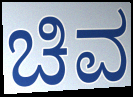
ಚಿವ